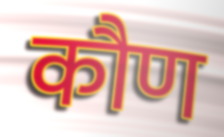
कौण